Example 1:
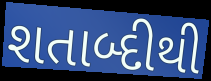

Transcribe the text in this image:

શતાબ્દીથી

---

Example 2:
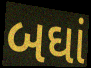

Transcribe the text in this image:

બઘાં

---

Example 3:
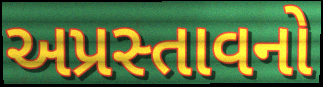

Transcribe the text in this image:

અપ્રસ્તાવનો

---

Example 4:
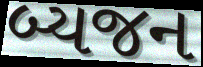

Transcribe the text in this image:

બ્યજન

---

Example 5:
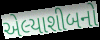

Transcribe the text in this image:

એલ્યાશીબનો